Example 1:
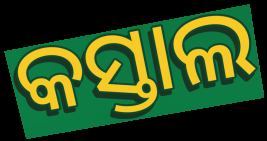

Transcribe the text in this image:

କସ୍ତାଲ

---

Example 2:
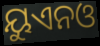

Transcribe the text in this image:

ୟୁଏନଓ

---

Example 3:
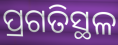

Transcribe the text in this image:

ପ୍ରଗତିସ୍ଥଳ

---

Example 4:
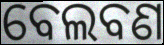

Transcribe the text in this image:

ବେଲବଣ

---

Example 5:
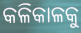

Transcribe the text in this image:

କଳିକାଳକୁ